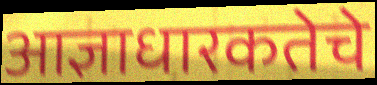
आज्ञाधारकतेचे